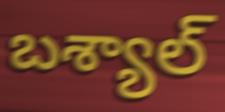
బశ్యాల్